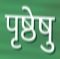
पृष्ठेषु